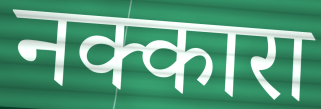
नक्कारा